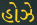
હોઝે